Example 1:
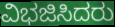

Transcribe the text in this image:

ವಿಭಜಿಸಿದರು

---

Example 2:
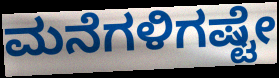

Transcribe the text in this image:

ಮನೆಗಳಿಗಷ್ಟೇ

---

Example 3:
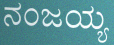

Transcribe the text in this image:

ನಂಜಯ್ಯ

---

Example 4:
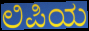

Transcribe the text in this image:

ಲಿಪಿಯ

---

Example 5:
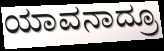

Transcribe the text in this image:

ಯಾವನಾದ್ರೂ